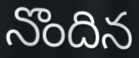
నొందిన